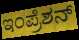
ಇಂಪ್ರೆಶನ್